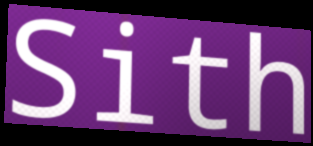
Sith